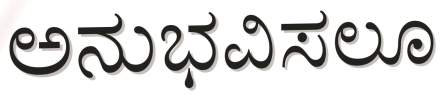
ಅನುಭವಿಸಲೂ